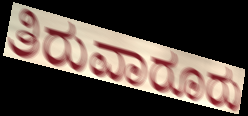
ತಿರುವಾರೂರು